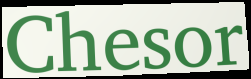
Chesor